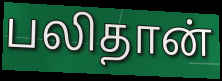
பலிதான்